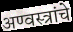
अण्वस्त्रांचे